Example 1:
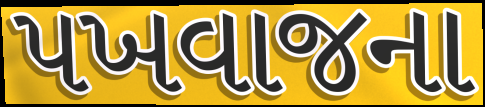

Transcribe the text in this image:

પખવાજના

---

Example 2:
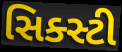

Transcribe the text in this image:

સિક્સ્ટી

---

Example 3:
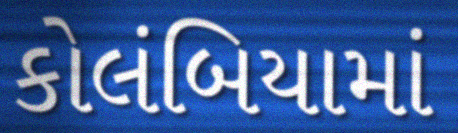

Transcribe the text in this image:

કોલંબિયામાં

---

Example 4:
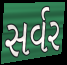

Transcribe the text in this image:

સર્વર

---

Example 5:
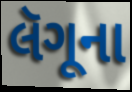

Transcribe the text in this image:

લૅગૂના